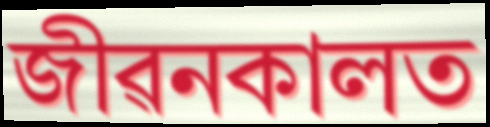
জীৱনকালত